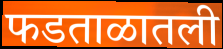
फडताळातली